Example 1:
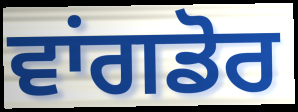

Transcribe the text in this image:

ਵਾਂਗਡੋਰ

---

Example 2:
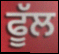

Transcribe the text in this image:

ਫੂੱਲ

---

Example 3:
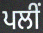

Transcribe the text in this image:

ਪਲੀਂ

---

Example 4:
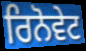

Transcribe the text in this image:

ਰਿਨੋਵੇਟ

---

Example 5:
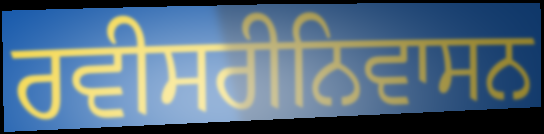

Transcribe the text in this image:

ਰਵੀਸਰੀਨਿਵਾਸਨ